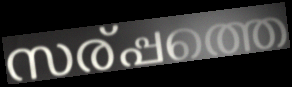
സര്പ്പത്തെ